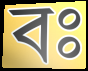
বঃ